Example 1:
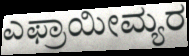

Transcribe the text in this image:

ಎಫ್ರಾಯೀಮ್ಯರ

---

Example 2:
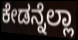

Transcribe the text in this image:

ಕೇಡನ್ನೆಲ್ಲಾ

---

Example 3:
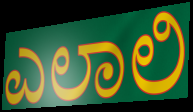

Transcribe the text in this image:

ಎಲಾಲಿ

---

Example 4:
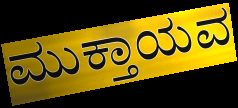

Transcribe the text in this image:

ಮುಕ್ತಾಯವ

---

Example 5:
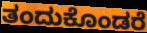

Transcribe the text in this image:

ತಂದುಕೊಂಡರೆ